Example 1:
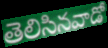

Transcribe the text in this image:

తెలిసినవాడో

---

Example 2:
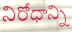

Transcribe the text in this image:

నిరోధాన్ని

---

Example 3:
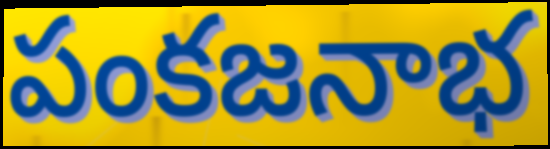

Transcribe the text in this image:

పంకజనాభ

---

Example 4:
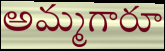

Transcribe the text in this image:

అమ్మగారూ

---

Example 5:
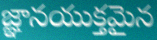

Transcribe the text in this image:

జ్ఞానయుక్తమైన